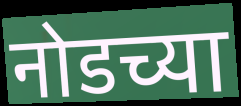
नोडच्या